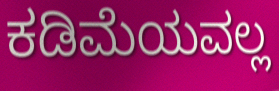
ಕಡಿಮೆಯವಲ್ಲ